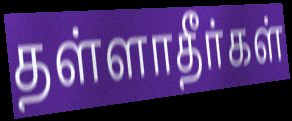
தள்ளாதீர்கள்